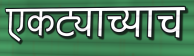
एकट्याच्याच